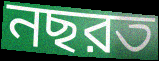
নছরত